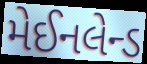
મેઈનલેન્ડ